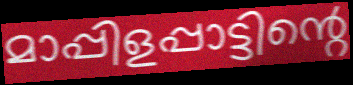
മാപ്പിളപ്പാട്ടിന്റെ